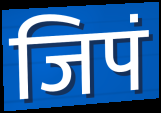
जिपं